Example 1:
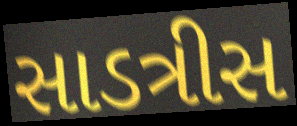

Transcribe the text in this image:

સાડત્રીસ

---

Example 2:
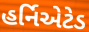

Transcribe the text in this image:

હર્નિએટેડ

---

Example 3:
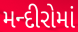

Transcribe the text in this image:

મન્દીરોમાં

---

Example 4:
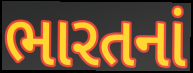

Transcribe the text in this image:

ભારતનાં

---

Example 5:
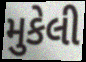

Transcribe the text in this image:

મુકેલી